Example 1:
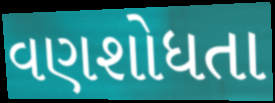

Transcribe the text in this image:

વણશોધતા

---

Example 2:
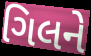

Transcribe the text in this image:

ગિલને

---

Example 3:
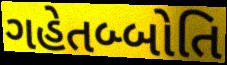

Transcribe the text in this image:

ગહેતબ્બોતિ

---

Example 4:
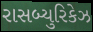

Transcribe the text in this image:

રાસબ્યુરિકેઝ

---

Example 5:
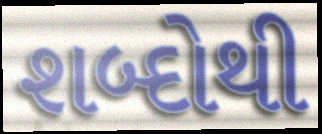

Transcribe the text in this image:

શબ્દોથી